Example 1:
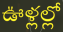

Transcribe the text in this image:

ఊళ్లల్లో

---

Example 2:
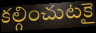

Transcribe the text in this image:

కల్గించుటకై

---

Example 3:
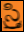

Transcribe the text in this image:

స్ర్తి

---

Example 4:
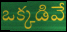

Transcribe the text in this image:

ఒక్కడివే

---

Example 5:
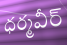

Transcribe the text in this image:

ధర్మవీర్